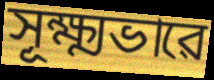
সূক্ষ্মভাৱে